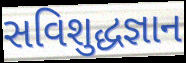
સવિશુદ્ધજ્ઞાન